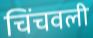
चिंचवली